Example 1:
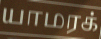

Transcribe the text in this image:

யாமரக்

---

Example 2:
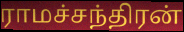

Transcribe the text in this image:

ராமச்சந்திரன்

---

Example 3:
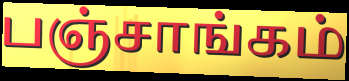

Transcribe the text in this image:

பஞ்சாங்கம்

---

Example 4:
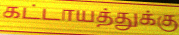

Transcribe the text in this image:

கட்டாயத்துக்கு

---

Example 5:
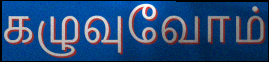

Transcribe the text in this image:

கழுவுவோம்